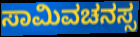
ಸಾಮಿವಚನಸ್ಸ